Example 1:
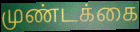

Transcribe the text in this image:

முண்டக்கை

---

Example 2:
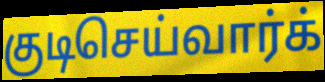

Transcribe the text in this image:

குடிசெய்வார்க்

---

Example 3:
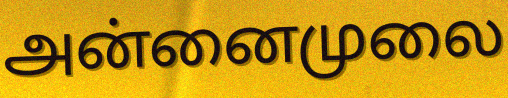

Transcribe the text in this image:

அன்னைமுலை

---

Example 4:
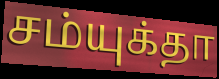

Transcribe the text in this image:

சம்யுக்தா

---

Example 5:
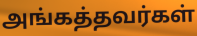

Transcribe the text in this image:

அங்கத்தவர்கள்